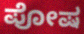
ಪೋಷ